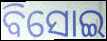
ବିସୋଇ